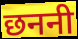
छननी